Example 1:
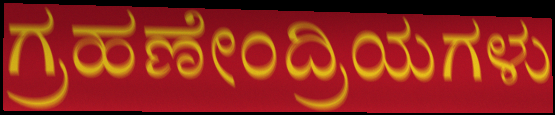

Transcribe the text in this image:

ಗ್ರಹಣೇಂದ್ರಿಯಗಳು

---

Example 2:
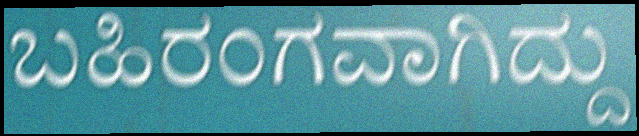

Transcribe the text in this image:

ಬಹಿರಂಗವಾಗಿದ್ದು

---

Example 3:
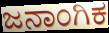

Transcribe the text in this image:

ಜನಾಂಗಿಕ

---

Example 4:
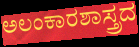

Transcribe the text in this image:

ಅಲಂಕಾರಶಾಸ್ತ್ರದ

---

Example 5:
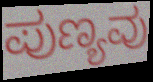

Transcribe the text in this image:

ಪುಣ್ಯವು